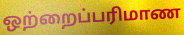
ஒற்றைப்பரிமாண